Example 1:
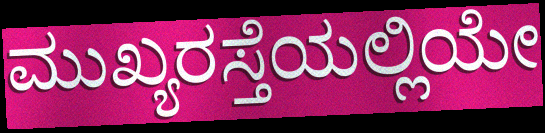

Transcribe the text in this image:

ಮುಖ್ಯರಸ್ತೆಯಲ್ಲಿಯೇ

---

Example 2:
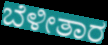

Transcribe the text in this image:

ಬೆಳೀತಾರ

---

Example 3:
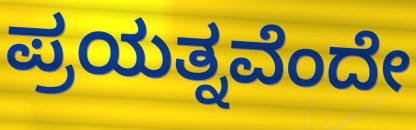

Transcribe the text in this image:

ಪ್ರಯತ್ನವೆಂದೇ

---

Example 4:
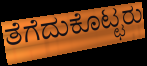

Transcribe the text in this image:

ತೆಗೆದುಕೊಟ್ಟರು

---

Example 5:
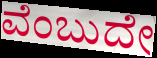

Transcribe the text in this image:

ವೆಂಬುದೇ